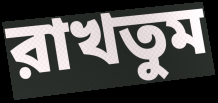
রাখতুম